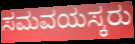
ಸಮವಯಸ್ಕರು